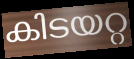
കിടയറ്റ